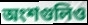
অংশগুলিও